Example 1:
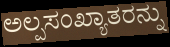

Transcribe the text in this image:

ಅಲ್ಪಸಂಖ್ಯಾತರನ್ನು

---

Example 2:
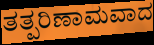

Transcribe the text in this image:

ತತ್ಪರಿಣಾಮವಾದ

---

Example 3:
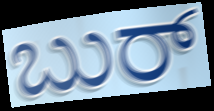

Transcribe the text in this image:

ಬುರ್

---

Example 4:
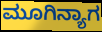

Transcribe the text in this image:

ಮೂಗಿನ್ಯಾಗ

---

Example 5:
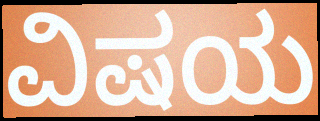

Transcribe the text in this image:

ವಿಷಯ